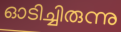
ഓടിച്ചിരുന്നു